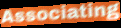
Associating